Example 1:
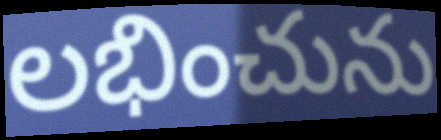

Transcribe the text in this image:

లభించును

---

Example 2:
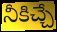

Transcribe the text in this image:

నీకిచ్చే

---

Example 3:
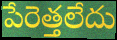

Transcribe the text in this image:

పేరెత్తలేదు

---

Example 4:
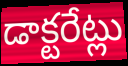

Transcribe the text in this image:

డాక్టరేట్లు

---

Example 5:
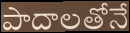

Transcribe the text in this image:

పాదాలతోనే